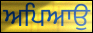
ਅਪਿਆਉ